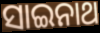
ସାଇନାଥ